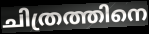
ചിത്രത്തിനെ